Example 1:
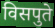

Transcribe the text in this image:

विसपुते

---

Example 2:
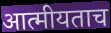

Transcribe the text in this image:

आत्मीयताच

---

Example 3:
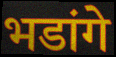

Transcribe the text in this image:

भडांगे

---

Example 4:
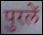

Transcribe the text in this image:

पुरलें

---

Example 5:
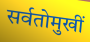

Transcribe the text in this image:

सर्वतोमुखीं